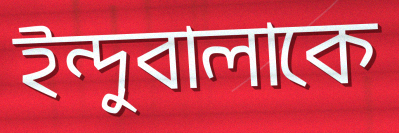
ইন্দুবালাকে